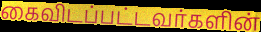
கைவிடப்பட்டவர்களின்